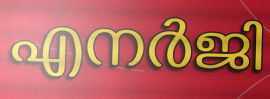
എനർജി